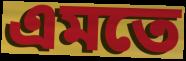
এমতে